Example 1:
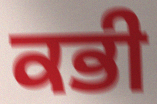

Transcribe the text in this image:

ਕਭੀ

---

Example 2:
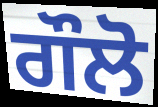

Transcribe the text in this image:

ਗੌਲੋ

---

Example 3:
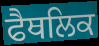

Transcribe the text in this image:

ਫੈਥਲਿਕ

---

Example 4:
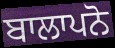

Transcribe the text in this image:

ਬਾਲਾਪਨੋ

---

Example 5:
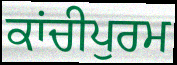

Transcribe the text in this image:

ਕਾਂਚੀਪੁਰਮ